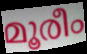
മൂരീം